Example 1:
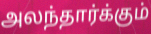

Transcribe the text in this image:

அலந்தார்க்கும்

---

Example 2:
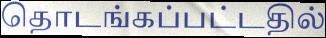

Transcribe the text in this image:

தொடங்கப்பட்டதில்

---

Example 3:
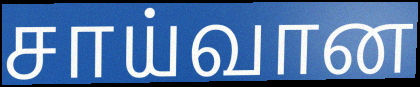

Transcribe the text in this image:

சாய்வான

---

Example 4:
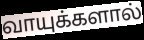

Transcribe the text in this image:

வாயுக்களால்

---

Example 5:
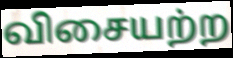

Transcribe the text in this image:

விசையற்ற